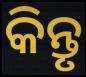
କିନ୍ତୃ